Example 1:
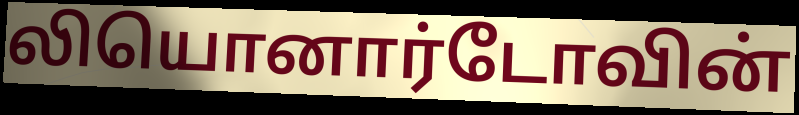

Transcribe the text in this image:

லியொனார்டோவின்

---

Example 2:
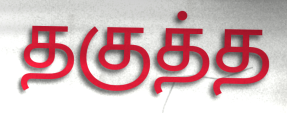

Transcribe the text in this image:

தகுத்த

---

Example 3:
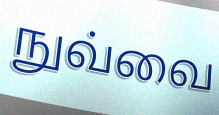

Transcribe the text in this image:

நுவ்வை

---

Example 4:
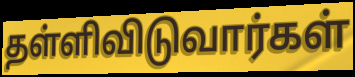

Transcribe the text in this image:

தள்ளிவிடுவார்கள்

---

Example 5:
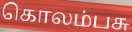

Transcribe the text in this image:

கொலம்பசு